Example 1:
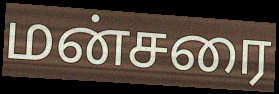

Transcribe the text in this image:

மன்சரை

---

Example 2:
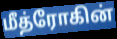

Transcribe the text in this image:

மீத்ரோகின்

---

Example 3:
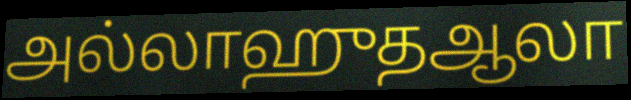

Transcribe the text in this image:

அல்லாஹுதஆலா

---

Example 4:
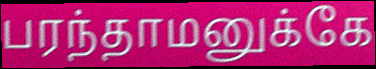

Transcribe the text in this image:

பரந்தாமனுக்கே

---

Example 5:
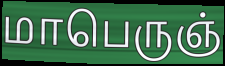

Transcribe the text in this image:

மாபெருஞ்